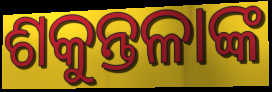
ଶକୁନ୍ତଳାଙ୍କ